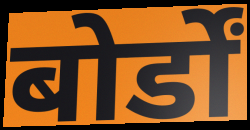
बोर्डों